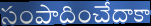
సంపాదించేదాకా